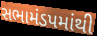
સભામંડપમાંથી